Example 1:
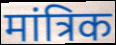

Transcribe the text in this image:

मांत्रिक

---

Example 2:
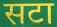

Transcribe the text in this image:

सटा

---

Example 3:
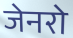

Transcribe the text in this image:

जेनरो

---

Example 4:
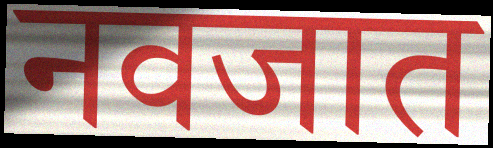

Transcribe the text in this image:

नवजात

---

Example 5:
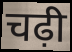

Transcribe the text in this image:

चढ़ी